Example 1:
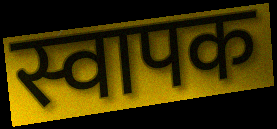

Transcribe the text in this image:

स्‍वापक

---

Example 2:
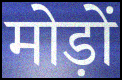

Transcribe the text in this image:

मोड़ों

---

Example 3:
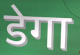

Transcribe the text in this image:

डेगा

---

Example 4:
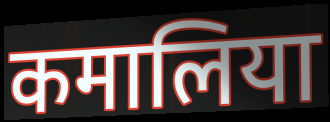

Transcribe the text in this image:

कमालिया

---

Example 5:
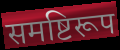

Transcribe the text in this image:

समष्टिरूप